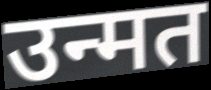
उन्मत